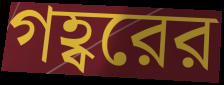
গহ্বরের